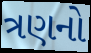
ત્રણનો